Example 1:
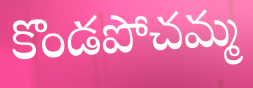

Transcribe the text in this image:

కొండపోచమ్మ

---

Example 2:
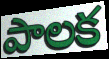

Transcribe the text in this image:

పాలక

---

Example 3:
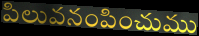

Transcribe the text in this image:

పిలువనంపించుము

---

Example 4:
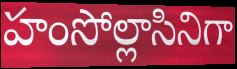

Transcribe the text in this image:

హంసోల్లాసినిగా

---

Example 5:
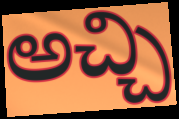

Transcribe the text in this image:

అచ్చి